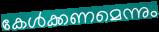
കേൾക്കണമെന്നും